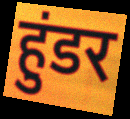
हुंडर